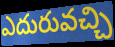
ఎదురువచ్చి